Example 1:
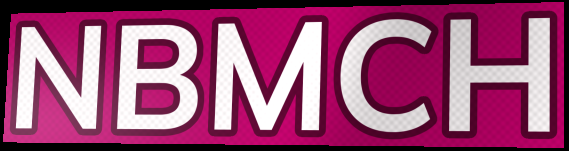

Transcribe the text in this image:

NBMCH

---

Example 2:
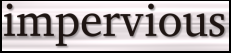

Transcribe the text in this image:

impervious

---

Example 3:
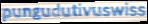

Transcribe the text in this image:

pungudutivuswiss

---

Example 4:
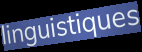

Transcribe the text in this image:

linguistiques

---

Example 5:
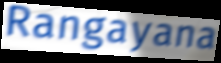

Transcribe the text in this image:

Rangayana